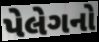
પેલેગનો